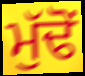
ਮੁੱਢੋਂ